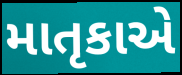
માતૃકાએ